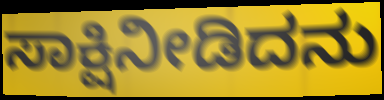
ಸಾಕ್ಷಿನೀಡಿದನು